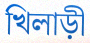
খিলাড়ী